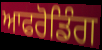
ਆਫਰੋਡਿੰਗ